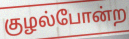
குழல்போன்ற